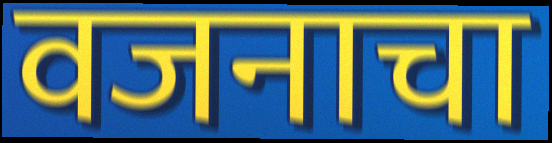
वजनाचा